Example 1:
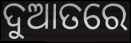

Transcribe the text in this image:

ଦୁଆତରେ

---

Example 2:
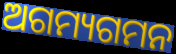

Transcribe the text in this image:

ଅଗମ୍ୟଗମନ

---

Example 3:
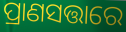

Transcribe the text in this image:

ପ୍ରାଣସତ୍ତାରେ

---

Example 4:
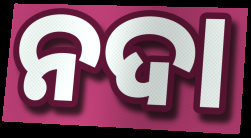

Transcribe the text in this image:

ନଦା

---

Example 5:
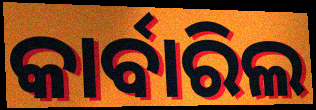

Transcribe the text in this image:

କାର୍ବାରିଲ